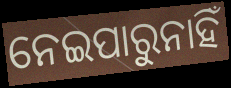
ନେଇପାରୁନାହିଁ